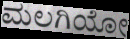
ಮಲಗಿಯೋ